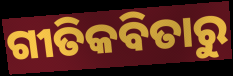
ଗୀତିକବିତାରୁ